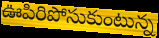
ఊపిరిపోసుకుంటున్న